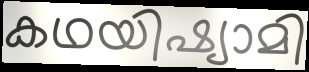
കഥയിഷ്യാമി